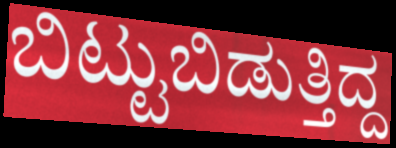
ಬಿಟ್ಟುಬಿಡುತ್ತಿದ್ದ